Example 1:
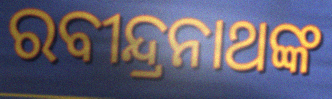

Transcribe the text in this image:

ରବୀନ୍ଦ୍ରନାଥଙ୍କ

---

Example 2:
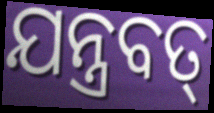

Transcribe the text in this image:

ଯନ୍ତ୍ରବତ୍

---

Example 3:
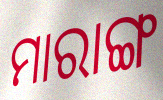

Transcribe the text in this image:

ମାରାଙ୍ଗ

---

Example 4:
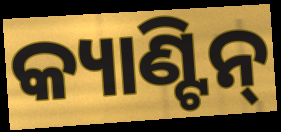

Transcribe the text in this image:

କ୍ୟାଣ୍ଟିନ୍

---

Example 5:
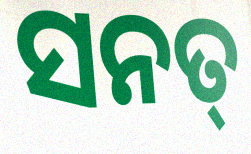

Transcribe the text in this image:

ସନତ୍